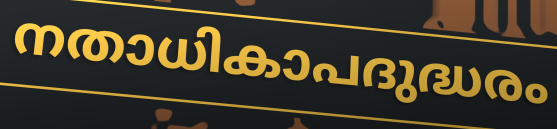
നതാധികാപദുദ്ധരം